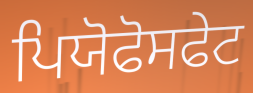
ਪਿਯੋਫੋਸਫੇਟ